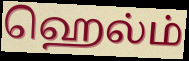
ஹெல்ம்